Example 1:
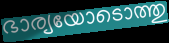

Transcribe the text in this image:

ഭാര്യയോടൊത്തു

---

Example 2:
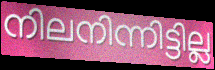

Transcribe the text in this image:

നിലനിന്നിട്ടില്ല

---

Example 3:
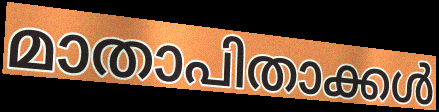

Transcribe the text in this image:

മാതാപിതാക്കൾ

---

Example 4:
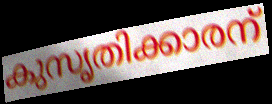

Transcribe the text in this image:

കുസൃതിക്കാരന്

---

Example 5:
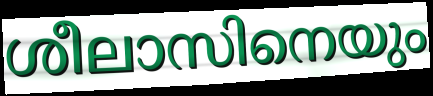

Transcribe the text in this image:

ശീലാസിനെയും